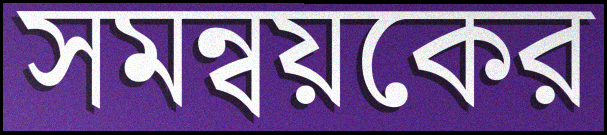
সমন্বয়কের